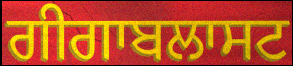
ਗੀਗਾਬਲਾਸਟ